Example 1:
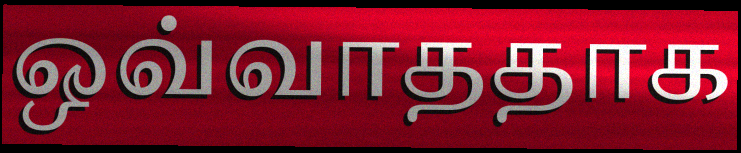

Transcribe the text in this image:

ஒவ்வாததாக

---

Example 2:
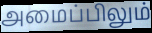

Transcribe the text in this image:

அமைப்பிலும்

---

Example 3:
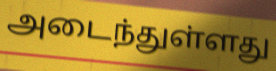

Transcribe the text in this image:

அடைந்துள்ளது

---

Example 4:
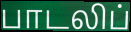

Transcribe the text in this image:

பாடலிப்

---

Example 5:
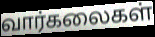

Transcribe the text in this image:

வார்கலைகள்